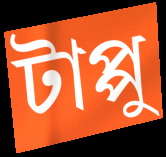
টাপ্পু